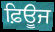
ਫ਼ਿਊਜ